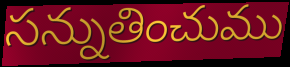
సన్నుతించుము